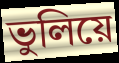
ভুলিয়ে